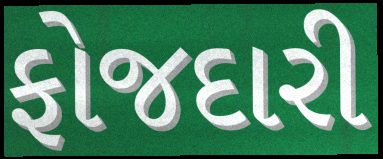
ફોજદારી